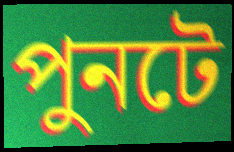
পুনটে